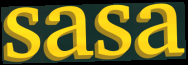
sasa